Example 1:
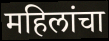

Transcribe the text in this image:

महिलांचा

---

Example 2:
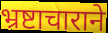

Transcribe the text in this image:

भ्रष्टाचाराने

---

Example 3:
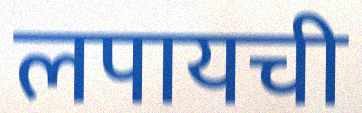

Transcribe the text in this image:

लपायची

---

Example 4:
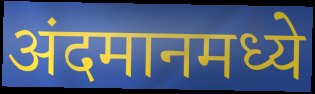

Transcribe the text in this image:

अंदमानमध्ये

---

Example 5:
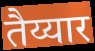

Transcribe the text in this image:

तैय्यार